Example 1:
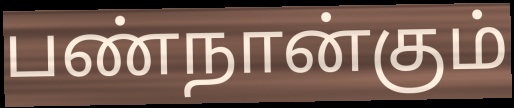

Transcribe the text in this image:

பண்நான்கும்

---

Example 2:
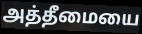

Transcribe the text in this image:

அத்தீமையை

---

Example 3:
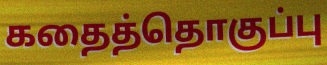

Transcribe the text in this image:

கதைத்தொகுப்பு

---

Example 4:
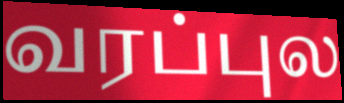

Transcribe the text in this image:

வரப்புல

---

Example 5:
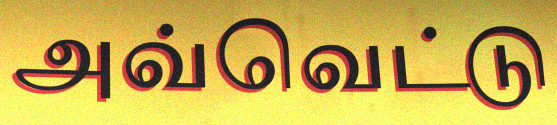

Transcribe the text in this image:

அவ்வெட்டு